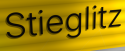
Stieglitz